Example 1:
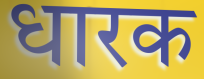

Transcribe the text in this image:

धारक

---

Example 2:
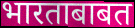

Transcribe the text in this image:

भारताबाबत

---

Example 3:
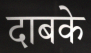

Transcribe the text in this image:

दाबके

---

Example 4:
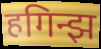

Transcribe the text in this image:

हगिन्झ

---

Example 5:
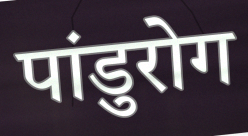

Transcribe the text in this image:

पांडुरोग